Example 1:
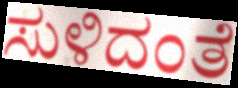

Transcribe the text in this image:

ಸುಳಿದಂತೆ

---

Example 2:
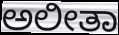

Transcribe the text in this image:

ಅಲೀತಾ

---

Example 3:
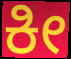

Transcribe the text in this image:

ಕೀ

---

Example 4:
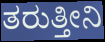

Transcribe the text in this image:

ತರುತ್ತೀನಿ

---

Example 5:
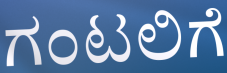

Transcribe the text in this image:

ಗಂಟಲಿಗೆ